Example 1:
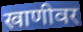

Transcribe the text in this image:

खाणीवर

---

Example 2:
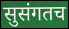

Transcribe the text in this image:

सुसंगतच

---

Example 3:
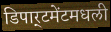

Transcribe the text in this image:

डिपार्टमेंटमधली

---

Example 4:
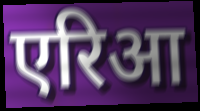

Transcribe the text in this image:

एरिआ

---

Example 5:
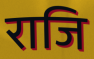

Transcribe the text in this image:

राजि